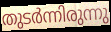
തുടർന്നിരുന്നു